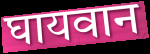
घायवान